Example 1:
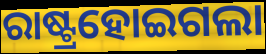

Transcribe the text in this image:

ରାଷ୍ଟ୍ରହୋଇଗଲା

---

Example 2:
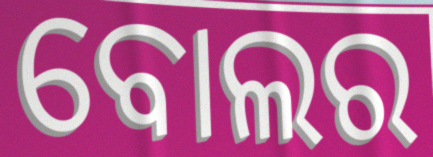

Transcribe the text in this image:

ବୋଲର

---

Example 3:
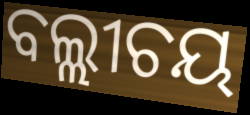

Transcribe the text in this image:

ବଲ୍ଲୀଚୟ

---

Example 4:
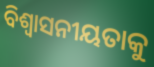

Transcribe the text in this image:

ବିଶ୍ୱାସନୀୟତାକୁ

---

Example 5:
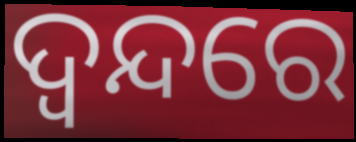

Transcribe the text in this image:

ଦ୍ୱନ୍ଦରେ